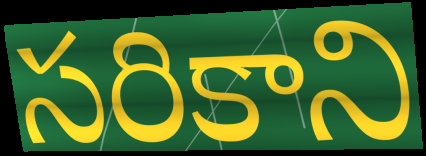
సరికాని